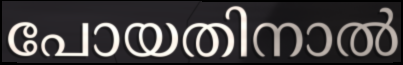
പോയതിനാൽ